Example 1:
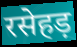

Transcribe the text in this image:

रसेहड़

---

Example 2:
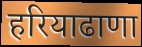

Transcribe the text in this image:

हरियाढाणा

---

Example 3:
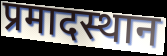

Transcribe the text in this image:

प्रमादस्थान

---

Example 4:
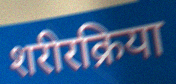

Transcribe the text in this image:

शरीरक्रिया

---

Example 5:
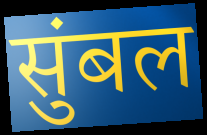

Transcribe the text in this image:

सुंबल